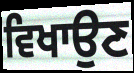
ਵਿਖਾਉਣ